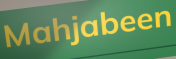
Mahjabeen